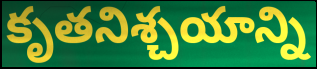
కృతనిశ్చయాన్ని